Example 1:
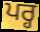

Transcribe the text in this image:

ਪਰ੍ਹ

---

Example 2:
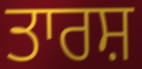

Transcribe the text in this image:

ਤਾਰਸ਼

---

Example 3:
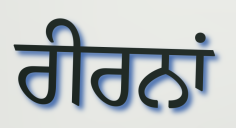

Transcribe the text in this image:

ਰੀਰਨਾਂ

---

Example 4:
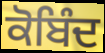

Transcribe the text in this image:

ਕੋਬਿੰਦ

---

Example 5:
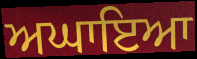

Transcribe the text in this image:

ਅਘਾਇਆ